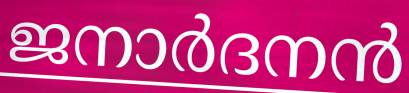
ജനാർദനൻ